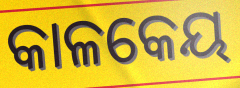
କାଳକେୟ